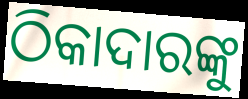
ଠିକାଦାରଙ୍କୁ